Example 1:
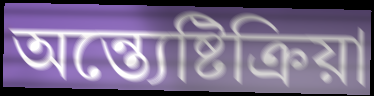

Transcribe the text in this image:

অন্ত্যেষ্টিক্রিয়া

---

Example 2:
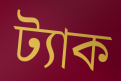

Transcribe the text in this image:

ট্যাক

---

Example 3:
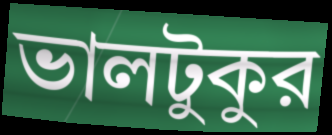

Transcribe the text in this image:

ভালটুকুর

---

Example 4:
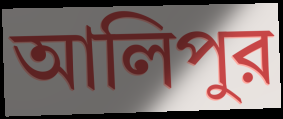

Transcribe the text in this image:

আলিপুর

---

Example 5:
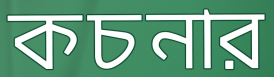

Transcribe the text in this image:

কচনার